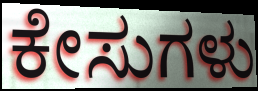
ಕೇಸುಗಳು